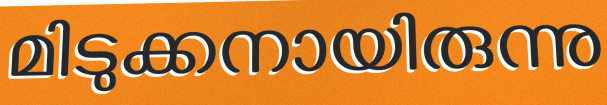
മിടുക്കനായിരുന്നു